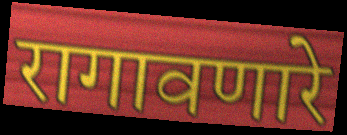
रागावणारे